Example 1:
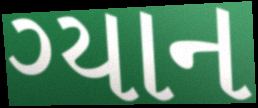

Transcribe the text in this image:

ગ્યાન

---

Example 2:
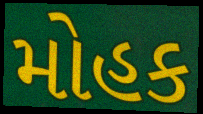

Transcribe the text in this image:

મોહક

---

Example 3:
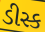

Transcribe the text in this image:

ડીસ્ક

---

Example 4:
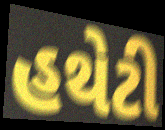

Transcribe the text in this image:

હથેટી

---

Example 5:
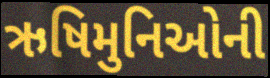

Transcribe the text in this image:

ઋષિમુનિઓની